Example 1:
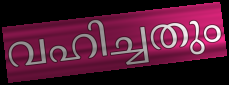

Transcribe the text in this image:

വഹിച്ചതും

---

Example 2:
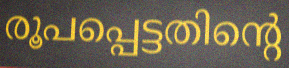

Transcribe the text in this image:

രൂപപ്പെട്ടതിന്റെ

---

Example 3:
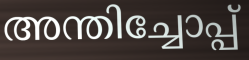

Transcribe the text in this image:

അന്തിച്ചോപ്പ്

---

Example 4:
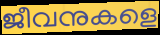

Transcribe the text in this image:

ജീവനുകളെ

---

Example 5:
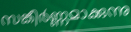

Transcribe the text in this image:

സങ്കീർണ്ണമാക്കുന്നു